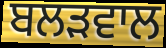
ਬਲੜਵਾਲ